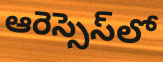
ఆరెస్సెస్‌లో